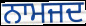
ਨਾਮਜਦ